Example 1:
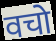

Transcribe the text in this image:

वचो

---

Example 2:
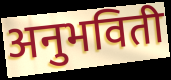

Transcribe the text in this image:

अनुभविती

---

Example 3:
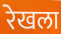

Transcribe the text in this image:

रेखला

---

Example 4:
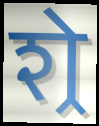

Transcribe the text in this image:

श्रे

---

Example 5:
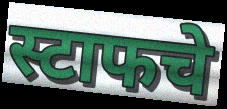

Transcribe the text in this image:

स्टाफचे